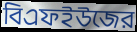
বিএফইউজের